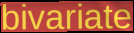
bivariate